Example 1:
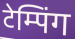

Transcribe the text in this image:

टेम्पिंग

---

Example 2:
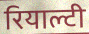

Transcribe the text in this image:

रियाल्टी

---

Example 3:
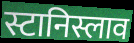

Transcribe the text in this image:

स्टानिस्लाव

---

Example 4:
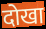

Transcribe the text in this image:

दोखा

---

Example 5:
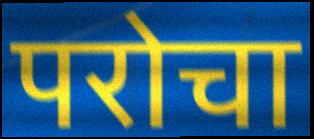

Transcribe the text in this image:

परोचा